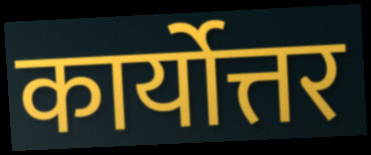
कार्योत्तर